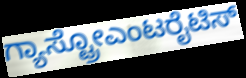
ಗ್ಯಾಸ್ಟ್ರೋಎಂಟರೈಟಿಸ್